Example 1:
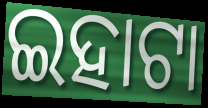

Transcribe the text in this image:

ଇହାଟା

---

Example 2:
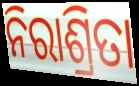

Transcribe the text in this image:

ନିରାଶ୍ରିତା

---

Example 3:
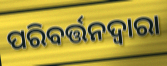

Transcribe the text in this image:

ପରିବର୍ତ୍ତନଦ୍ୱାରା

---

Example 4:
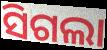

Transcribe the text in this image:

ସିଗଲା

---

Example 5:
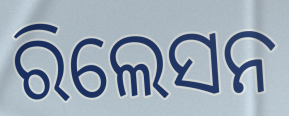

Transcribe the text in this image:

ରିଲେସନ